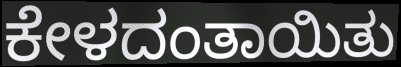
ಕೇಳದಂತಾಯಿತು